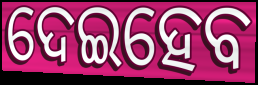
ଦେଇହେବ